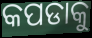
କପଡାକୁ